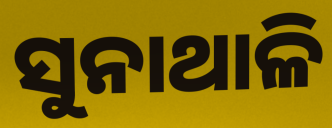
ସୁନାଥାଳି